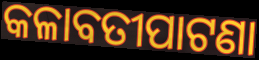
କଳାବତୀପାଟଣା